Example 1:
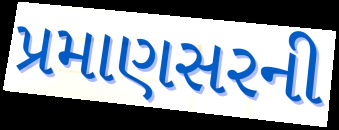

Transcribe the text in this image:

પ્રમાણસરની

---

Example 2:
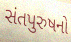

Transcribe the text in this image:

સંતપુરુષનો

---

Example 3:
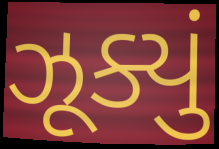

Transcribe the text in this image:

ઝૂક્યું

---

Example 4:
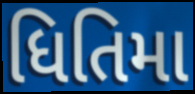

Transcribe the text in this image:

ધિતિમા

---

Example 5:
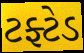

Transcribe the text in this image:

ટફ્ટેડ